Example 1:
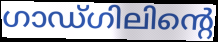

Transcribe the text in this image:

ഗാഡ്ഗിലിന്റെ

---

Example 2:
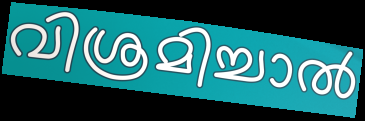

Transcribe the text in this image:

വിശ്രമിച്ചാൽ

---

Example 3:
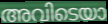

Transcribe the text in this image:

അവിടെയാ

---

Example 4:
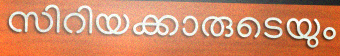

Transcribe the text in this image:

സിറിയക്കാരുടെയും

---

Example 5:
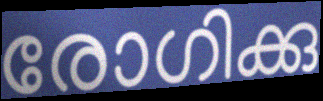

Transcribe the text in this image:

രോഗിക്കു